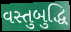
વસ્તુબુદ્ધિ